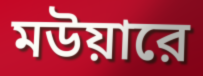
মউয়ারে